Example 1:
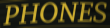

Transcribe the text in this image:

PHONES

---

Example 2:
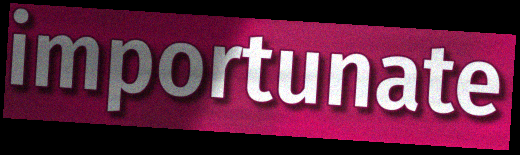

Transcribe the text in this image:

importunate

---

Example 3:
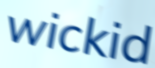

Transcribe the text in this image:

wickid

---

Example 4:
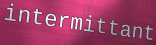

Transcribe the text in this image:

intermittant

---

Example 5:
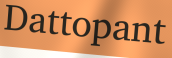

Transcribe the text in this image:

Dattopant